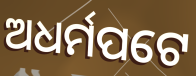
ଅଧର୍ମପଟେ